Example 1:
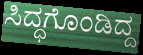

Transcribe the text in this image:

ಸಿದ್ಧಗೊಂಡಿದ್ದ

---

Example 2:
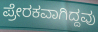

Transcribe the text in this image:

ಪ್ರೇರಕವಾಗಿದ್ದವು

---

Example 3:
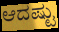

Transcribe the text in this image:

ಆದಷ್ಟು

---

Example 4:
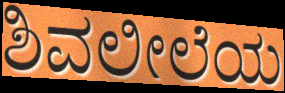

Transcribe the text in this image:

ಶಿವಲೀಲೆಯ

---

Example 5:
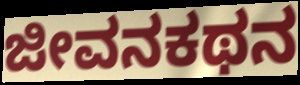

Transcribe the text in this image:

ಜೀವನಕಥನ